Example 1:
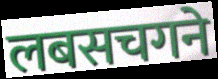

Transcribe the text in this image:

लबसचगने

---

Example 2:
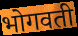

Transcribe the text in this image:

भोगवती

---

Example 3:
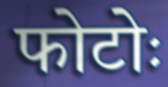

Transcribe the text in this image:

फोटोः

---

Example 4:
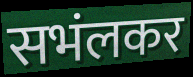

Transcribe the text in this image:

सभंलकर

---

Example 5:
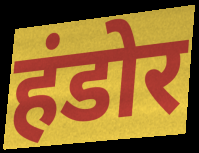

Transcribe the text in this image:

हंडोर